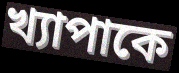
খ্যাপাকে